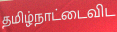
தமிழ்நாட்டைவிட